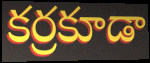
కర్రకూడా